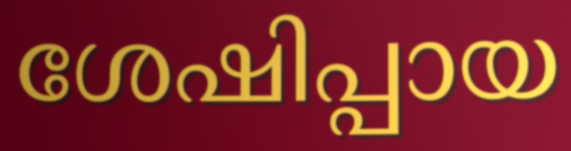
ശേഷിപ്പായ